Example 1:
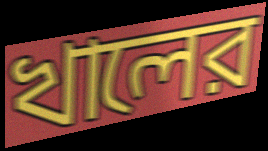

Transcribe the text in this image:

খালের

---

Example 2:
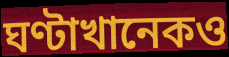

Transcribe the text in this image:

ঘণ্টাখানেকও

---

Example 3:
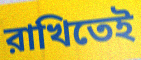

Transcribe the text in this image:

রাখিতেই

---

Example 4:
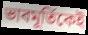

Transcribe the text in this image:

ভাবমূর্তিকেই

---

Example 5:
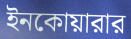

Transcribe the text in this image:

ইনকোয়ারার